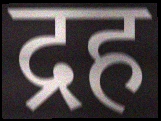
द्रह